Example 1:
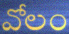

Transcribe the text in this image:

వోలం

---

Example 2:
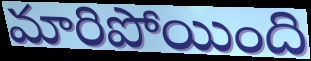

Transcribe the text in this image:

మారిపోయింది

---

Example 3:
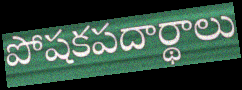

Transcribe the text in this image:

పోషకపదార్థాలు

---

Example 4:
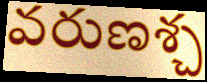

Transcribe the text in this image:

వరుణశ్చ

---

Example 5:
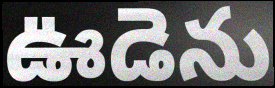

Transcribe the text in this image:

ఊడెను